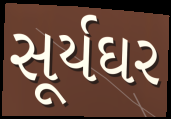
સૂર્યઘર